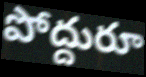
పోద్దురూ